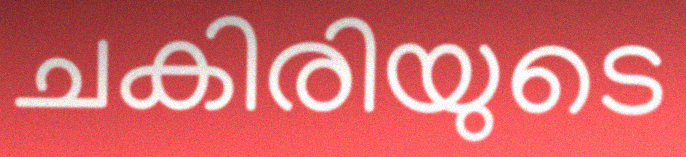
ചകിരിയുടെ